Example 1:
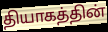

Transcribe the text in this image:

தியாகத்தின்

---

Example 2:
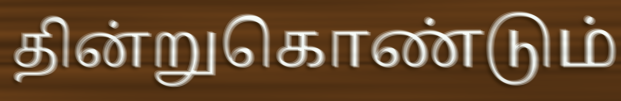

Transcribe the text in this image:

தின்றுகொண்டும்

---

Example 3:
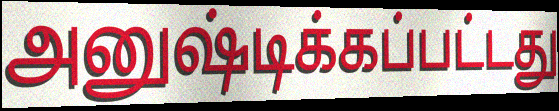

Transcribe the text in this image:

அனுஷ்டிக்கப்பட்டது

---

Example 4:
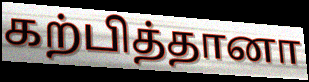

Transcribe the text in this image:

கற்பித்தானா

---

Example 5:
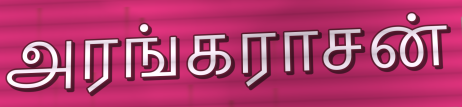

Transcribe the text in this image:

அரங்கராசன்